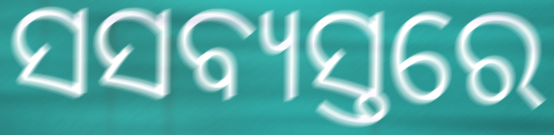
ସସବ୍ୟସ୍ତରେ